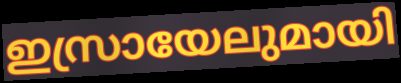
ഇസ്രായേലുമായി